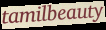
tamilbeauty